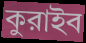
কুরাইব